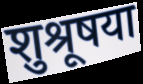
शुश्रूषया